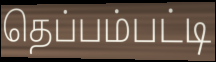
தெப்பம்பட்டி